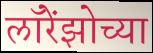
लॉरेंझोच्या